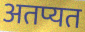
अतप्यत